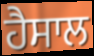
ਹੈਸਾਲ